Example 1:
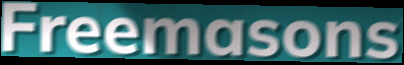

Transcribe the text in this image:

Freemasons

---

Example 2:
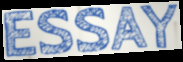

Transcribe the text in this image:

ESSAY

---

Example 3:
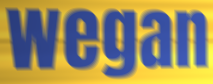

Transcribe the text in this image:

wegan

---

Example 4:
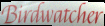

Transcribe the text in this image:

Birdwatcher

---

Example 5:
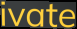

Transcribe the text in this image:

ivate